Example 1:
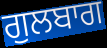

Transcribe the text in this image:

ਗੁਲਬਾਗ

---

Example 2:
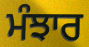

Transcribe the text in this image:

ਮੰਝਾਰ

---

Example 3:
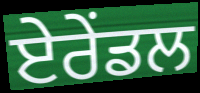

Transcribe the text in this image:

ਏਰੇਂਡਲ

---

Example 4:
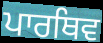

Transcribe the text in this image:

ਪਾਰਥਿਵ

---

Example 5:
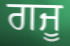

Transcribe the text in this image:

ਗਜੂ